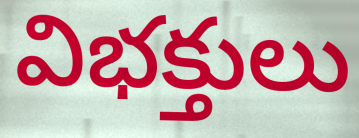
విభక్తులు